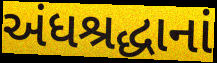
અંધશ્રદ્ધાનાં